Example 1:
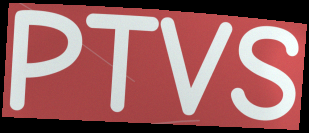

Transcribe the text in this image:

PTVS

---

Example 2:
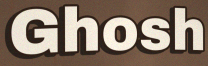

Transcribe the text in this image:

Ghosh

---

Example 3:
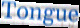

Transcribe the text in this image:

Tongue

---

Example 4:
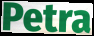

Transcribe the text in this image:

Petra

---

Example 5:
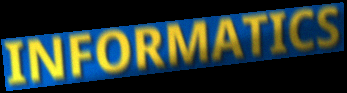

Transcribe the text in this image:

INFORMATICS